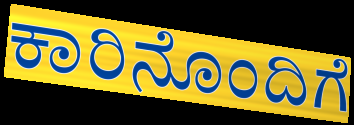
ಕಾರಿನೊಂದಿಗೆ